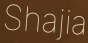
Shajia